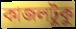
কাজলটুকু